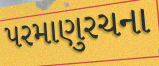
પરમાણુરચના